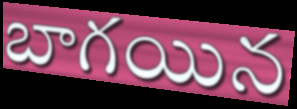
బాగయిన